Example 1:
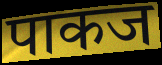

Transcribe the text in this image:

पाकज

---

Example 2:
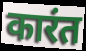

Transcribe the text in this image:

कारंत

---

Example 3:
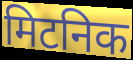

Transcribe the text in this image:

मिटनिक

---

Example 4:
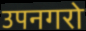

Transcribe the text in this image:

उपनगरो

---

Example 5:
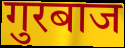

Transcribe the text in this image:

गुरबाज